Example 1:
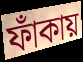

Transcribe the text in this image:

ফাঁকায়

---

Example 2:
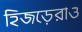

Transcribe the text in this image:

হিজড়েরাও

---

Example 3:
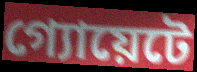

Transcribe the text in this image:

গ্যোয়েটে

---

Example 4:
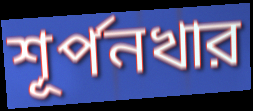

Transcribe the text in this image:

শূর্পনখার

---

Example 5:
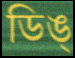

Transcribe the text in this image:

ডিঙ্